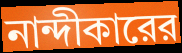
নান্দীকারের